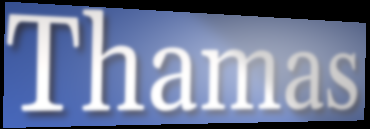
Thamas